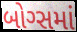
બોગ્સમાં